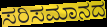
ಸರಿಸಮಾನದ